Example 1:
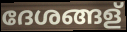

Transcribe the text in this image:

ദേശങ്ങള്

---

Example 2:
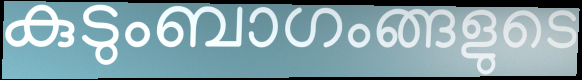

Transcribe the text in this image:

കുടുംബാഗംങ്ങളുടെ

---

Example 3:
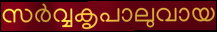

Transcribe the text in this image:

സർവ്വകൃപാലുവായ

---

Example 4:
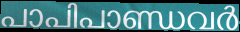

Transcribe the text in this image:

പാപിപാണ്ഡവർ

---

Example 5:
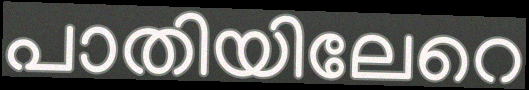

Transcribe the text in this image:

പാതിയിലേറെ